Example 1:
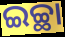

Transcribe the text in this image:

ଇଚ୍ଛା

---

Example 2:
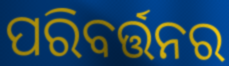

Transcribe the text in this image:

ପରିବର୍ତ୍ତନର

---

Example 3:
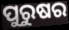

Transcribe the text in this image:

ପୁରୁଷର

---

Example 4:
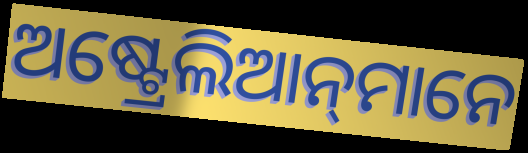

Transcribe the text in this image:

ଅଷ୍ଟ୍ରେଲିଆନ୍‌ମାନେ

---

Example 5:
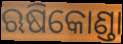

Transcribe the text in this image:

ଋଷିକୋଣ୍ଡା